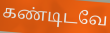
கண்டிடவே